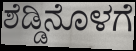
ಶೆಡ್ಡಿನೊಳಗೆ